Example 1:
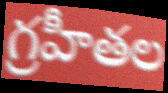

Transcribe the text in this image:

గ్రహీతల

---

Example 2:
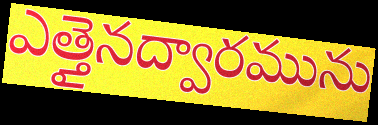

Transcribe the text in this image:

ఎత్తైనద్వారమును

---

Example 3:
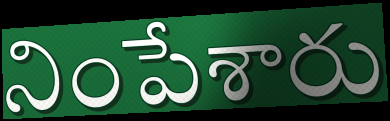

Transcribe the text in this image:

నింపేశారు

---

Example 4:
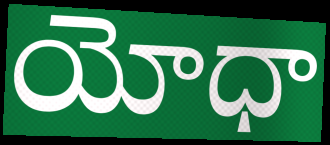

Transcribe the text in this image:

యోధా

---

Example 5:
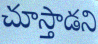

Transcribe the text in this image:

చూస్తాడని